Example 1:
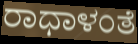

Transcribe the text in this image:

ರಾಧಾಳಂತೆ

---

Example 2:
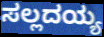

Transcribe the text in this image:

ಸಲ್ಲದಯ್ಯ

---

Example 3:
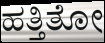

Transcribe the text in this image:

ಹತ್ತಿತೋ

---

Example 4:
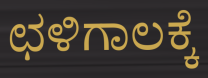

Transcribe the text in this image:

ಛಳಿಗಾಲಕ್ಕೆ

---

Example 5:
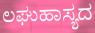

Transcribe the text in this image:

ಲಘುಹಾಸ್ಯದ